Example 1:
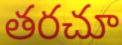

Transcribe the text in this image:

తరచూ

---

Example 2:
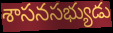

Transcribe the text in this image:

శాసనసభ్యుడు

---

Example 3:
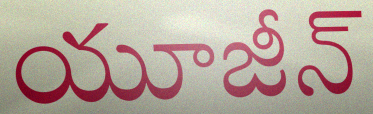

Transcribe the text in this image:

యూజీన్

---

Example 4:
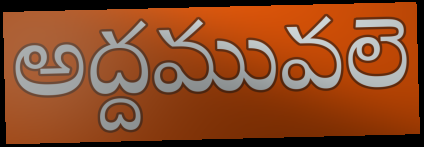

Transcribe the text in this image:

అద్దమువలె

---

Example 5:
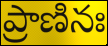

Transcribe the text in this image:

ప్రాణినః